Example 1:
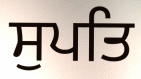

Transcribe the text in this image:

ਸੁਪਤਿ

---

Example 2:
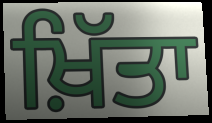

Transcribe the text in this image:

ਖ਼ਿੱਤਾ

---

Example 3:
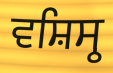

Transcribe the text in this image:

ਵਸ਼ਿਸ੍ਠ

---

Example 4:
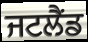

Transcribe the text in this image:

ਜਟਲੈਂਡ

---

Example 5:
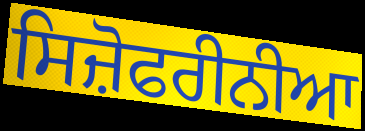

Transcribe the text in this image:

ਸਿਜ਼ੋਫਰੀਨੀਆ